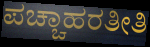
ಪಚ್ಚಾಹರತೀತಿ